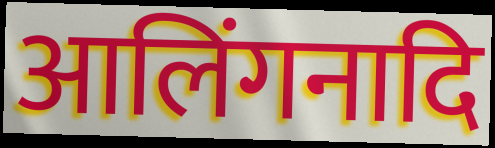
आलिंगनादि